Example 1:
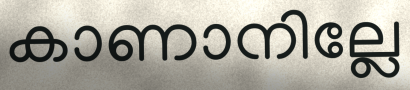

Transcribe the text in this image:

കാണാനില്ലേ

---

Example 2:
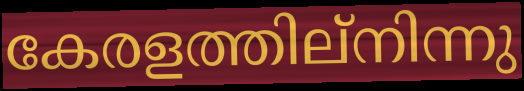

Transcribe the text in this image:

കേരളത്തില്നിന്നു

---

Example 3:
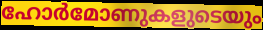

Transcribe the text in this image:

ഹോർമോണുകളുടെയും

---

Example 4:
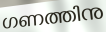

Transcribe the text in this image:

ഗണത്തിനു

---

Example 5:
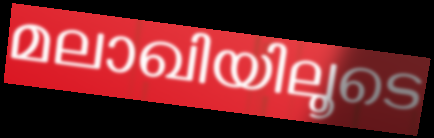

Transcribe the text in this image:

മലാഖിയിലൂടെ